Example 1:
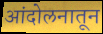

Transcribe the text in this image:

आंदोलनातून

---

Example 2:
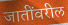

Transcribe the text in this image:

जातींवरील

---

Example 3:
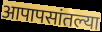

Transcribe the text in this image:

आपापसांतल्या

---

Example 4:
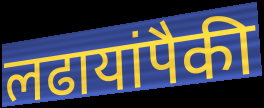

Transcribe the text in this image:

लढायांपैकी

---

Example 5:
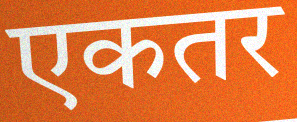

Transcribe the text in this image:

एकतर